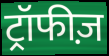
ट्रॉफीज़